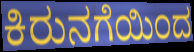
ಕಿರುನಗೆಯಿಂದ